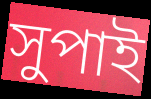
সুপাই